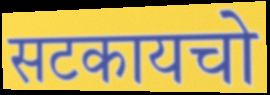
सटकायचो